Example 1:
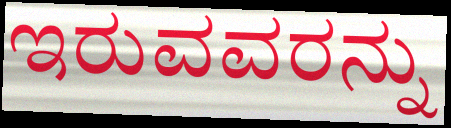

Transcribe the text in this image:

ಇರುವವರನ್ನು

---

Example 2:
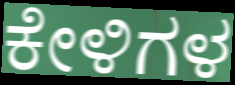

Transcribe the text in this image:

ಕೇಳಿಗಳ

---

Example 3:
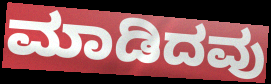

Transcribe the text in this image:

ಮಾಡಿದವು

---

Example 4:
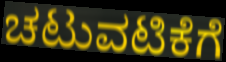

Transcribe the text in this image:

ಚಟುವಟಿಕೆಗೆ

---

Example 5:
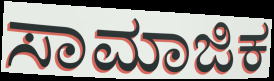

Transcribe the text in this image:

ಸಾಮಾಜಿಕ